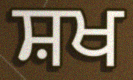
ਸ਼ਖ